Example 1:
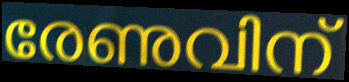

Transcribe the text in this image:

രേണുവിന്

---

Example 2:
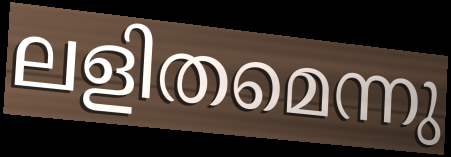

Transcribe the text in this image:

ലളിതമെന്നു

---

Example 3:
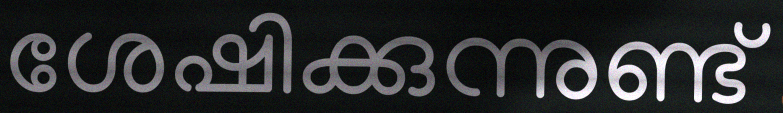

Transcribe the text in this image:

ശേഷിക്കുന്നുണ്ട്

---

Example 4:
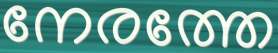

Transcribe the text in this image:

നേരത്തേ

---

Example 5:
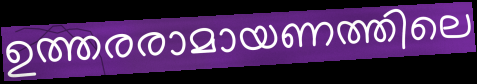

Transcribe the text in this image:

ഉത്തരരാമായണത്തിലെ